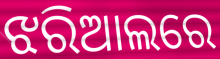
ଝରିଆଲରେ